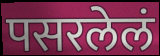
पसरलेलं